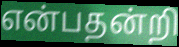
என்பதன்றி